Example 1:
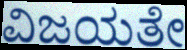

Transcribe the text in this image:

ವಿಜಯತೇ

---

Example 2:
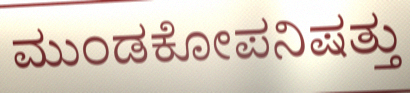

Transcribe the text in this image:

ಮುಂಡಕೋಪನಿಷತ್ತು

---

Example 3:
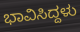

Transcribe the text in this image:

ಭಾವಿಸಿದ್ದಳು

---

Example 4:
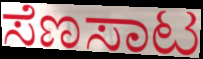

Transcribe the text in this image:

ಸೆಣಸಾಟ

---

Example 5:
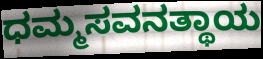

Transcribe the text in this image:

ಧಮ್ಮಸವನತ್ಥಾಯ